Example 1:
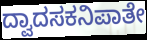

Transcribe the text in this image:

ದ್ವಾದಸಕನಿಪಾತೇ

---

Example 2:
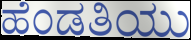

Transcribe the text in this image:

ಹೆಂಡತಿಯು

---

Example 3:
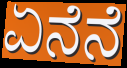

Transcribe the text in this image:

ಏನೆನೆ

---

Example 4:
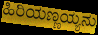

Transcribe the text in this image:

ಹಿರಿಯಣ್ಣಯ್ಯನು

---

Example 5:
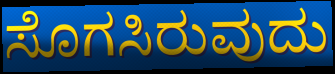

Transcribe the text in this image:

ಸೊಗಸಿರುವುದು